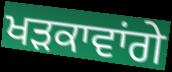
ਖੜਕਾਵਾਂਗੇ